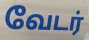
வேடர்